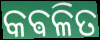
କଵଳିତ